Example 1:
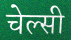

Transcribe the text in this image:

चेल्सी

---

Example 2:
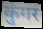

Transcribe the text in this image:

कुंगर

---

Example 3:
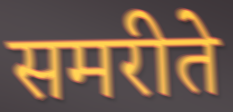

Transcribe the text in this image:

समरीते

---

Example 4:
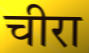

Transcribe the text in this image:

चीरा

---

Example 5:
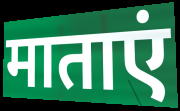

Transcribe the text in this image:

माताएं